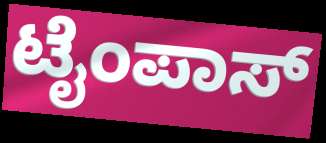
ಟೈಂಪಾಸ್